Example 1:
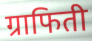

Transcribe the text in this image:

ग्राफिती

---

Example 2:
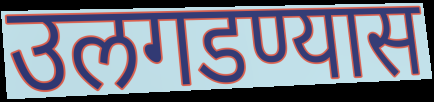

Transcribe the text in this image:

उलगडण्यास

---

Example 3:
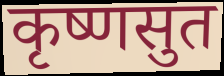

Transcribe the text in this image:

कृष्णसुत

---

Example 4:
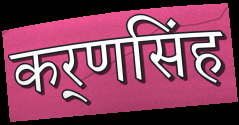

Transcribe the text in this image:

कर्णसिंह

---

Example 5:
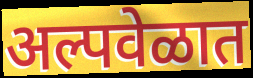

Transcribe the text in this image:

अल्पवेळात